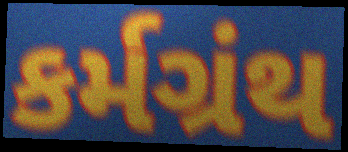
કર્મગ્રંથ